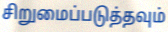
சிறுமைப்படுத்தவும்